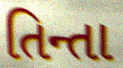
તિન્તા